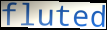
fluted